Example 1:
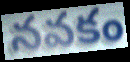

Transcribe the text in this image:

నవకం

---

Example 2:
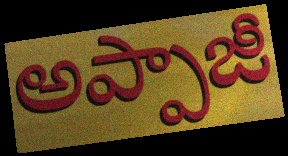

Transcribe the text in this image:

అప్పాజీ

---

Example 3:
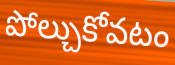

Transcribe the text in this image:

పోల్చుకోవటం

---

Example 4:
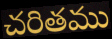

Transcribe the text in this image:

చరితము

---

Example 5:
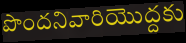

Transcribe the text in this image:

పొందనివారియొద్దకు